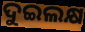
ଦୁଇଲକ୍ଷ